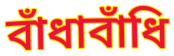
বাঁধাবাঁধি